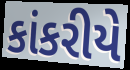
કાંકરીયે